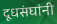
दूधसंघांनी